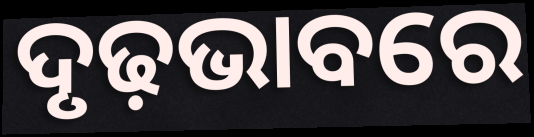
ଦୃଢ଼ଭାବରେ